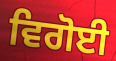
ਵਿਗੋਈ